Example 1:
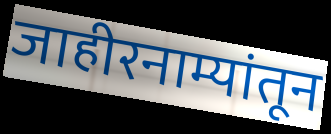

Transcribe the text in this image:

जाहीरनाम्यांतून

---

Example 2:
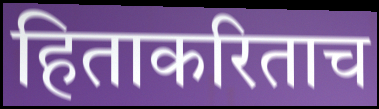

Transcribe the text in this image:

हिताकरिताच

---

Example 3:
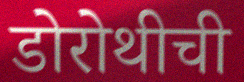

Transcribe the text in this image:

डोरोथीची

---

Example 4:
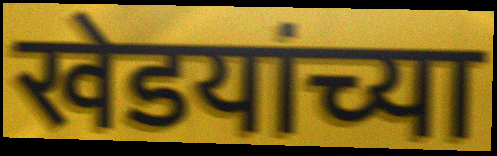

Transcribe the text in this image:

खेडयांच्या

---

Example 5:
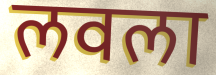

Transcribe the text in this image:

लवला